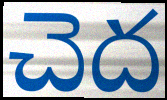
చెద